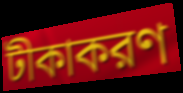
টীকাকরণ